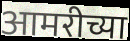
आमरीच्या